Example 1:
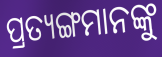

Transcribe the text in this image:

ପ୍ରତ୍ୟଙ୍ଗମାନଙ୍କୁ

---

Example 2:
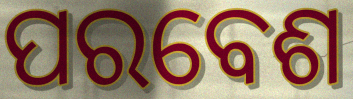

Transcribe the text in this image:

ପରବେଶ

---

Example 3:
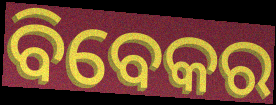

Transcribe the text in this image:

ବିବେକର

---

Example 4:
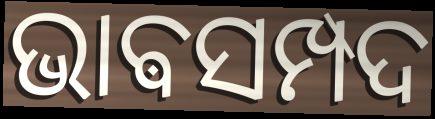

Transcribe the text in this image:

ଭାଵସମ୍ପଦ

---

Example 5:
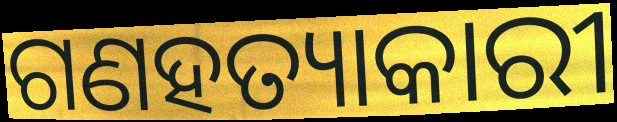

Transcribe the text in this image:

ଗଣହତ୍ୟାକାରୀ